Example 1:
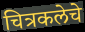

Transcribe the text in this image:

चित्रकलेचे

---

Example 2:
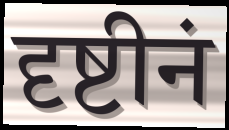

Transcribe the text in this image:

दृष्टीनं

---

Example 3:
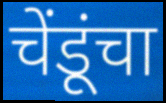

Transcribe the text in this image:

चेंडूंचा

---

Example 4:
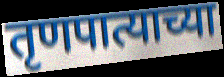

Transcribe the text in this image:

तृणपात्याच्या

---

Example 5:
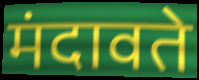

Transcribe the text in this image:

मंदावते